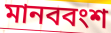
মানববংশ